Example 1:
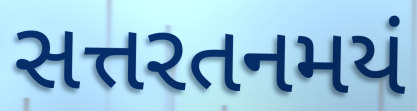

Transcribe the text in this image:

સત્તરતનમયં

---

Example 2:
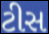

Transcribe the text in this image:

ટીસ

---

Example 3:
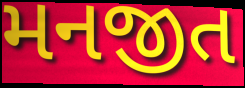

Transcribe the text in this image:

મનજીત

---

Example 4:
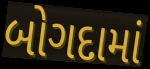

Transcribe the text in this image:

બોગદામાં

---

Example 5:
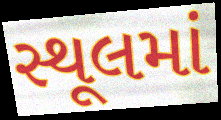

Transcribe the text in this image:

સ્થૂલમાં